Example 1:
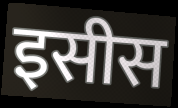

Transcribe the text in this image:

इसीस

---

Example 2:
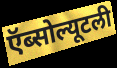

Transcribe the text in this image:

ऍब्सोल्यूटली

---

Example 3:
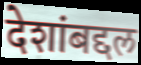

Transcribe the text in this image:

देशांबद्दल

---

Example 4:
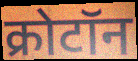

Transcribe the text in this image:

क्रोटॉन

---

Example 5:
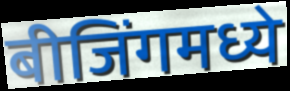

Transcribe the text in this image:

बीजिंगमध्ये